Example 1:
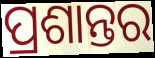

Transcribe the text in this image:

ପ୍ରଶାନ୍ତର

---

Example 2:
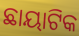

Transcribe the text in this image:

ଛାୟାଟିକ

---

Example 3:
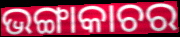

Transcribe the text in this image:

ଭଙ୍ଗାକାଚର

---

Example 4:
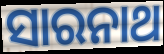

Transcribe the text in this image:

ସାରନାଥ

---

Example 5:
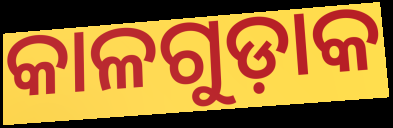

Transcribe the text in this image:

କାଳଗୁଡ଼ାକ